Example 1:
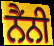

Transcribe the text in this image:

ਨੈਂਨੀ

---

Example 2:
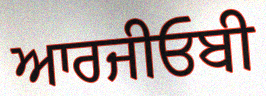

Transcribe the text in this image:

ਆਰਜੀਓਬੀ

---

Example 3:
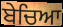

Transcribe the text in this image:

ਬੇਚਿਆ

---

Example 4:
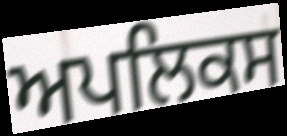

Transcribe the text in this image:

ਅਪਲਿਕਸ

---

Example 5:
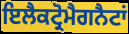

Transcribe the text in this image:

ਇਲੈਕਟ੍ਰੋਮੈਗਨੈਟਾਂ